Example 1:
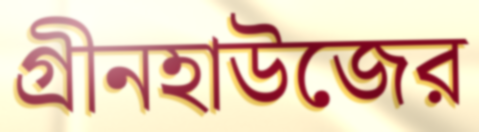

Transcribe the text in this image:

গ্রীনহাউজের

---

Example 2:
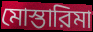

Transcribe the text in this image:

মোস্তারিমা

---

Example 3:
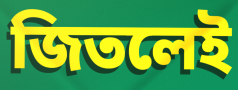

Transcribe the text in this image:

জিতলেই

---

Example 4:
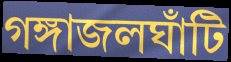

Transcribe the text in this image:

গঙ্গাজলঘাঁটি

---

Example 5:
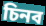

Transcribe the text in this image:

চিনব